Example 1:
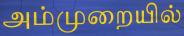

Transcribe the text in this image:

அம்முறையில்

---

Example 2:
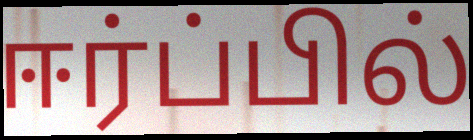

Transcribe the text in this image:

ஈர்ப்பில்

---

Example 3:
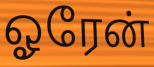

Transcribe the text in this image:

ஓரேன்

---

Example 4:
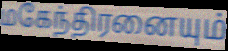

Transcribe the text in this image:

மகேந்திரனையும்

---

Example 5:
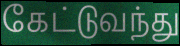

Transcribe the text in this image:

கேட்டுவந்து